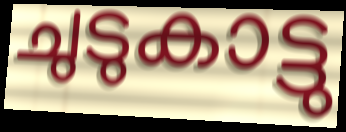
ചുടുകാട്ടു